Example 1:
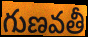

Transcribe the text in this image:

గుణవతీ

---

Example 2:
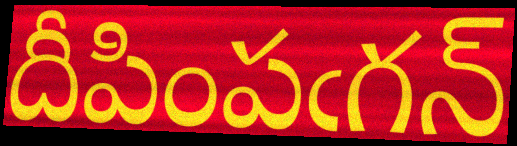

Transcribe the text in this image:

దీపింపఁగన్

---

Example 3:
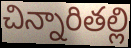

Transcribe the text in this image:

చిన్నారితల్లి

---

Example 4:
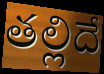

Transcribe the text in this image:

తల్లిదే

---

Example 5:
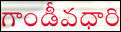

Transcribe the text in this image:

గాండీవధారి